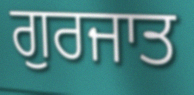
ਗੁਰਜਾਤ